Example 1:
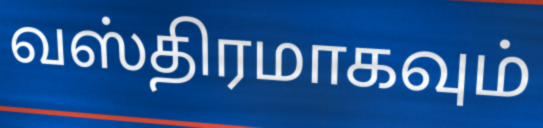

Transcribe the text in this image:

வஸ்திரமாகவும்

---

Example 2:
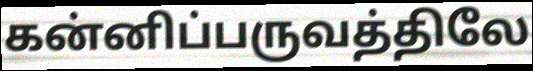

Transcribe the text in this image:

கன்னிப்பருவத்திலே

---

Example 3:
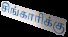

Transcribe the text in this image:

சிங்காரிக்கு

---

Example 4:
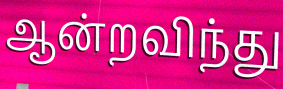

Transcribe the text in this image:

ஆன்றவிந்து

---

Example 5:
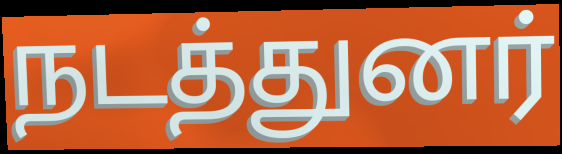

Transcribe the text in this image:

நடத்துனர்